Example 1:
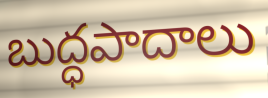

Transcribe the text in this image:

బుద్ధపాదాలు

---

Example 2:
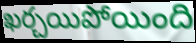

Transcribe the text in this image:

ఖర్చయిపోయింది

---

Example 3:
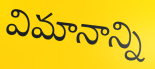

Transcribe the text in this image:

విమానాన్ని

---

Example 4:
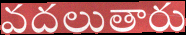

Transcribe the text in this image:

వదలుతారు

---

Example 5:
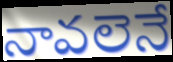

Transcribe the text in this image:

నావలెనే